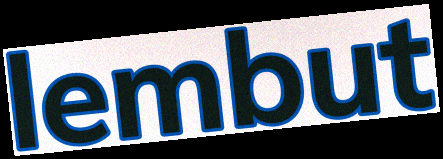
lembut